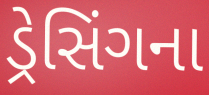
ડ્રેસિંગના